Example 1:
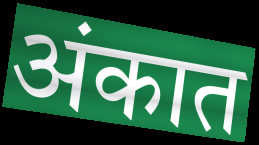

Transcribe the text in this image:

अंकात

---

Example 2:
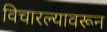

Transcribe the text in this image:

विचारल्यावरून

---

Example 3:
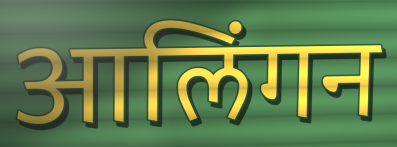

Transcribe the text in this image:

आलिंगन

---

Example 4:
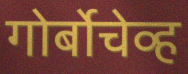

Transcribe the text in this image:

गोर्बोचेव्ह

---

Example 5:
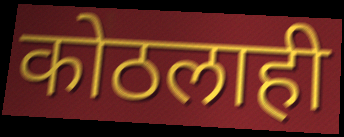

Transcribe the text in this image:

कोठलाही